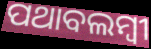
ପଥାବଲମ୍ବୀ